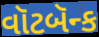
વૉટબૅન્ક